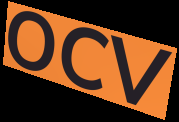
OCV